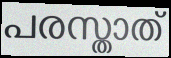
പരസ്താത്